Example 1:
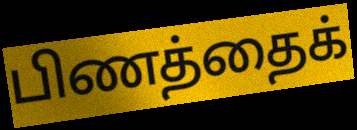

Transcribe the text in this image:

பிணத்தைக்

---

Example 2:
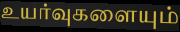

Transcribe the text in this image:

உயர்வுகளையும்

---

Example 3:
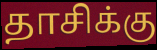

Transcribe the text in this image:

தாசிக்கு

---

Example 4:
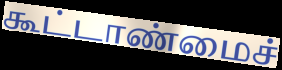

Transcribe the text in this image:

கூட்டாண்மைச்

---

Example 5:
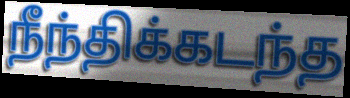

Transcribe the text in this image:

நீந்திக்கடந்த